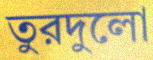
তুরদুলো